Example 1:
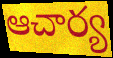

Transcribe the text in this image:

ఆచార్య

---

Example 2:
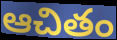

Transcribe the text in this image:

ఆచితం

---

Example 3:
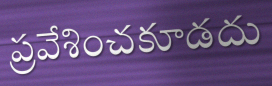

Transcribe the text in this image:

ప్రవేశించకూడదు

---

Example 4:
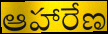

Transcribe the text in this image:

ఆహారేణ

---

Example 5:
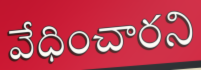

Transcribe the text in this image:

వేధించారని